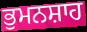
ਭੁਮਨਸ਼ਾਹ